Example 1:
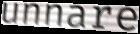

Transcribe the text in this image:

unnare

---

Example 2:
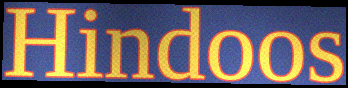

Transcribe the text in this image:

Hindoos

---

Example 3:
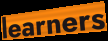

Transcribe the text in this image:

learners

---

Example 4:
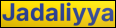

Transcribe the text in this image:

Jadaliyya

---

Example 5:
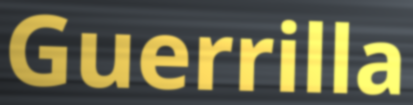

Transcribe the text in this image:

Guerrilla